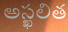
అస్ఖలిత